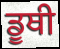
ਡੂਥੀ